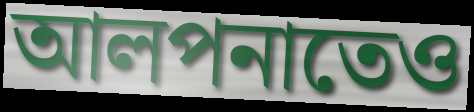
আলপনাতেও